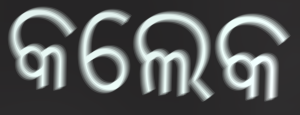
କଲେକ